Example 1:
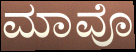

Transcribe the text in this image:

ಮಾವೊ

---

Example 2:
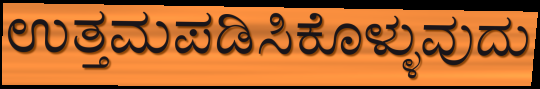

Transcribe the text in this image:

ಉತ್ತಮಪಡಿಸಿಕೊಳ್ಳುವುದು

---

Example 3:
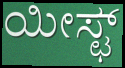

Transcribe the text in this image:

ಯೀಸ್ಟ್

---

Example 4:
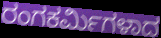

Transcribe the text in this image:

ರಂಗಕರ್ಮಿಗಳಾದ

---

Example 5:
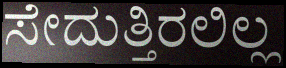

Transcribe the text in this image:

ಸೇದುತ್ತಿರಲಿಲ್ಲ